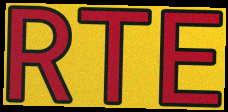
RTE